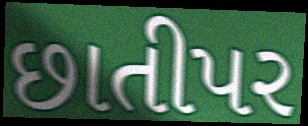
છાતીપર